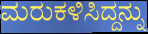
ಮರುಕಳಿಸಿದ್ದನ್ನು